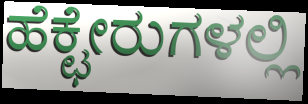
ಹೆಕ್ಟೇರುಗಳಲ್ಲಿ